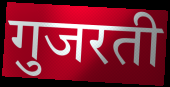
गुजरती